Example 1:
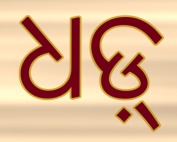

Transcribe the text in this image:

ଧଡ଼୍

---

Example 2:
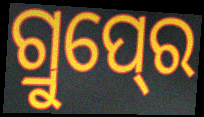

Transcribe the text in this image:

ଗ୍ରୁପ୍‍ରେ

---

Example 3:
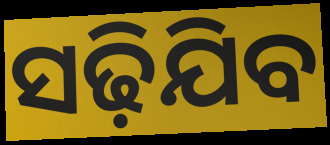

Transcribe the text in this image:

ସଢ଼ିଯିବ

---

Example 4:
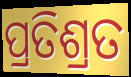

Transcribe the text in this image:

ପ୍ରତିଶ୍ରତ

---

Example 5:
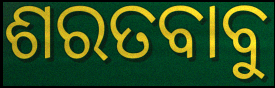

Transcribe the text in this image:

ଶରତବାବୁ